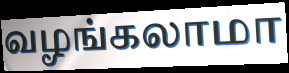
வழங்கலாமா